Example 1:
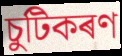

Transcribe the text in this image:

চুটিকৰণ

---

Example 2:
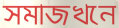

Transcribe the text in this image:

সমাজখনে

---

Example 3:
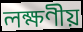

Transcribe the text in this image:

লক্ষণীয়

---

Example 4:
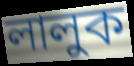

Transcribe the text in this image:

লালুক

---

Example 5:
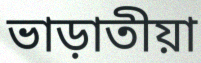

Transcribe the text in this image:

ভাড়াতীয়া